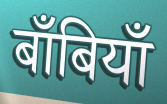
बाँबियाँ